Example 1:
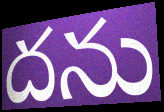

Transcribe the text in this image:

దను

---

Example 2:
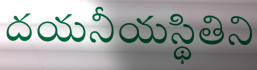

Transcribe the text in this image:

దయనీయస్థితిని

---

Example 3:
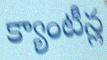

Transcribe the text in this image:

క్యాంటీన్ల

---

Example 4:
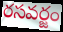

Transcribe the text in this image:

రసవర్జం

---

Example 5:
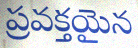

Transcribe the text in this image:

ప్రవక్తయైన